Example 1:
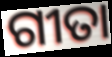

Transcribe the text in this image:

ଗୀତା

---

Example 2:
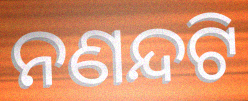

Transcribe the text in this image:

ନଣନ୍ଦଟି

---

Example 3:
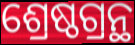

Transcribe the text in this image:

ଶ୍ରେଷ୍ଠଗ୍ରନ୍ଥ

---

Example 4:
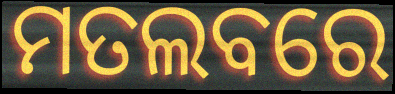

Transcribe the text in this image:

ମତଲବରେ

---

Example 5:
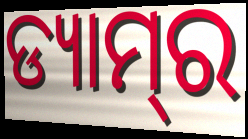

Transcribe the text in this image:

ଡ୍ୟାମ୍‍ର